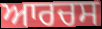
ਆਰਚਸ